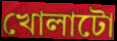
খোলাটো